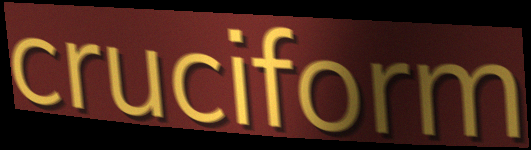
cruciform